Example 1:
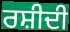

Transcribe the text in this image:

ਰਸ਼ੀਦੀ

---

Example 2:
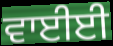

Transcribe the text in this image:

ਵਾਈਈ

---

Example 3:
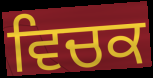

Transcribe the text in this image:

ਵਿਚਕ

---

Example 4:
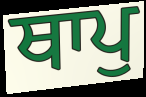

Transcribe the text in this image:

ਥਾਪੁ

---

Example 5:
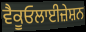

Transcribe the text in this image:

ਵੈਕੂਓਲਾਈਜ਼ੇਸ਼ਨ